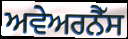
ਅਵੇਅਰਨੈੱਸ